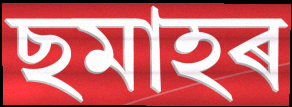
ছমাহৰ